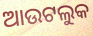
ଆଉଟଲୁକ